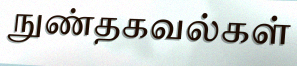
நுண்தகவல்கள்